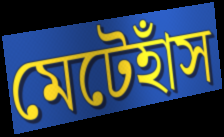
মেটেহাঁস